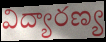
విద్యారణ్య